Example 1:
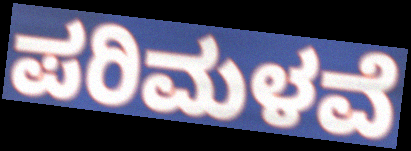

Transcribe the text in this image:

ಪರಿಮಳವೆ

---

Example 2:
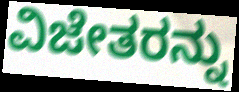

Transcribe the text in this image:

ವಿಜೇತರನ್ನು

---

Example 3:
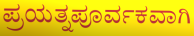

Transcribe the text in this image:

ಪ್ರಯತ್ನಪೂರ್ವಕವಾಗಿ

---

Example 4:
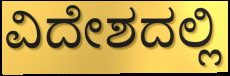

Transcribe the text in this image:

ವಿದೇಶದಲ್ಲಿ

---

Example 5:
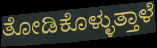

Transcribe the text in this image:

ತೋಡಿಕೊಳ್ಳುತ್ತಾಳೆ